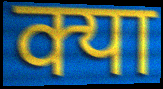
क्या